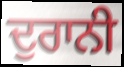
ਦੁਰਾਨੀ